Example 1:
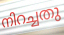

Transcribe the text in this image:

നിറച്ചതു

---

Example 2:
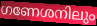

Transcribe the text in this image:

ഗണേശനിലും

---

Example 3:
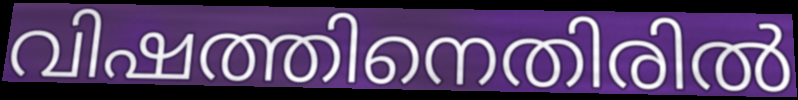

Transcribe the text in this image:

വിഷത്തിനെതിരിൽ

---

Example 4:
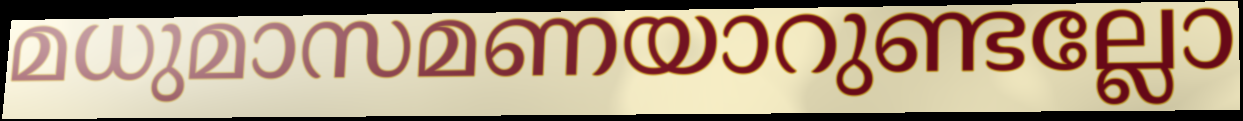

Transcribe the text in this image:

മധുമാസമണയാറുണ്ടല്ലോ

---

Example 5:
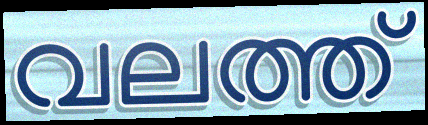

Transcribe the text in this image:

വലത്ത്